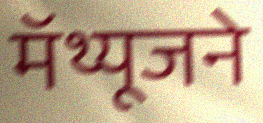
मॅथ्यूजने